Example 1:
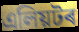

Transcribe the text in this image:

এলিয়টৰ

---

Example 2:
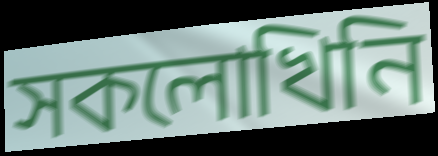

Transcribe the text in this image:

সকলোখিনি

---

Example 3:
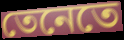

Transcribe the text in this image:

তেনেতে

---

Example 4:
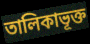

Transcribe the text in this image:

তালিকাভূক্ত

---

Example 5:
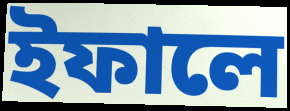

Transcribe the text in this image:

ইফালে